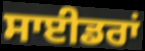
ਸਾਈਡਰਾਂ